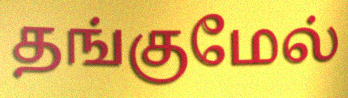
தங்குமேல்